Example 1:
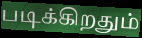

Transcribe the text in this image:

படிக்கிறதும்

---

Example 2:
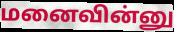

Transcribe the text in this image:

மனைவின்னு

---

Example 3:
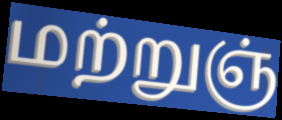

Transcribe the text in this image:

மற்றுஞ்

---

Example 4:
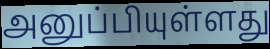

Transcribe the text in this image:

அனுப்பியுள்ளது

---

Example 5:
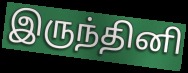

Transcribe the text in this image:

இருந்தினி